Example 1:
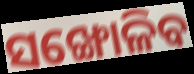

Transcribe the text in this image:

ସଙ୍ଖୋଳିବ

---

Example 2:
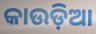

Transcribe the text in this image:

କାଉଡ଼ିଆ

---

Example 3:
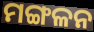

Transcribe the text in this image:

ମଙ୍ଗଳନ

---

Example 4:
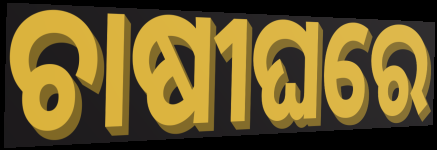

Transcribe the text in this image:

ଚାଷୀଘରେ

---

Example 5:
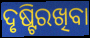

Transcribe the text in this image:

ଦୃଷ୍ଟିରଖିବା